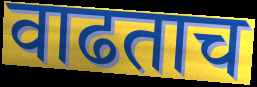
वाढताच